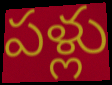
పళ్లు